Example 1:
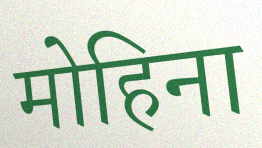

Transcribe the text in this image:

मोहिना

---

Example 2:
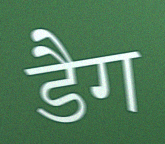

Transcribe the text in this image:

डैग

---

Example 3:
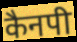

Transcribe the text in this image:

कैनपी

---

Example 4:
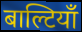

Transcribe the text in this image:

बाल्टियाँ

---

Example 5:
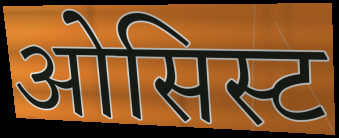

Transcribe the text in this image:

ओसिस्ट